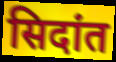
सिदांत